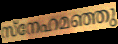
സ്നേഹമഞ്ഞു